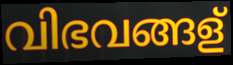
വിഭവങ്ങള്